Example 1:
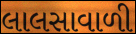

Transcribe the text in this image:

લાલસાવાળી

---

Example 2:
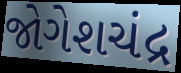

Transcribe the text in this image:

જોગેશચંદ્ર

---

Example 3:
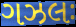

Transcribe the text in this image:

ગઝલઃ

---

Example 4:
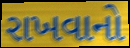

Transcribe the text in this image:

રાખવાનો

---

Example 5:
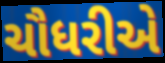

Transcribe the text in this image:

ચૌધરીએ